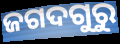
ଜଗଦଗୁରୁ